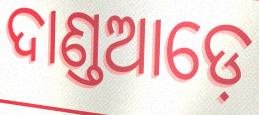
ଦାଣ୍ଡଆଡ଼େ